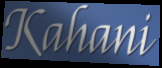
Kahani